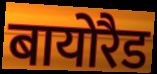
बायोरैड